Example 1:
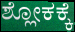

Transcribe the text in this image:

ಶ್ಲೋಕಕ್ಕೆ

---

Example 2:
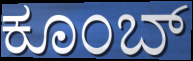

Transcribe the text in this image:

ಕೂಂಬ್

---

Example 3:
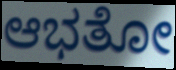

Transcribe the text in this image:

ಆಭತೋ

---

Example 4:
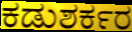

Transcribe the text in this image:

ಕಡುಶರ್ಕರ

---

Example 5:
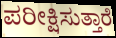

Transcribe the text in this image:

ಪರೀಕ್ಷಿಸುತ್ತಾರೆ